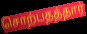
சொற்பதத்தார்